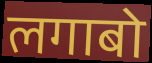
लगाबो